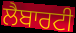
ਲੈਬਾਰਟੀ